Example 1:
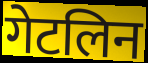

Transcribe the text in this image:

गेटलिन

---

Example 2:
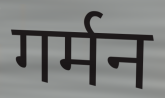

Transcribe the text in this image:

गर्मन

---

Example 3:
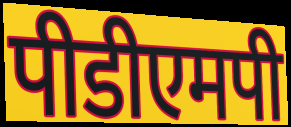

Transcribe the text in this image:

पीडीएमपी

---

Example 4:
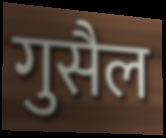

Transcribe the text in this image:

गुसैल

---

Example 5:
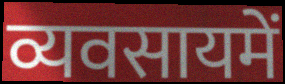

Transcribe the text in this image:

व्यवसायमें